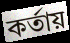
কর্তায়